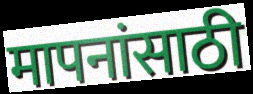
मापनांसाठी